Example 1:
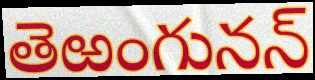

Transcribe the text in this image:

తెఱంగునన్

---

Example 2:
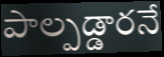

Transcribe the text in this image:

పాల్పడ్డారనే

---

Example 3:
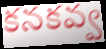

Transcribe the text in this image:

కనకవ్వ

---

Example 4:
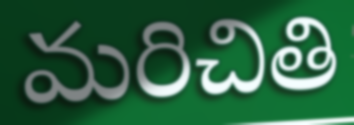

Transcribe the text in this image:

మరిచితి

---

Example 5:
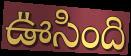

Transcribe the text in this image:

ఊసింది